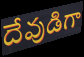
దేవుడిగా